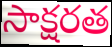
సాక్షరత